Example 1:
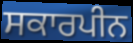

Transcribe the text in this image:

ਸਕਾਰਪੀਨ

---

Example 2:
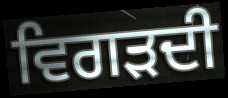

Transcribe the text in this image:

ਵਿਗੜਦੀ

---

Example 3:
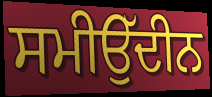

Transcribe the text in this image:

ਸਮੀਉੱਦੀਨ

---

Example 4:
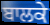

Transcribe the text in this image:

ਬਾਲਕੇ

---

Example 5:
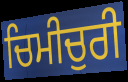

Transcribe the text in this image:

ਚਿਮੀਚੁਰੀ